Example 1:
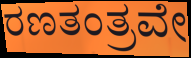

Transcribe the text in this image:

ರಣತಂತ್ರವೇ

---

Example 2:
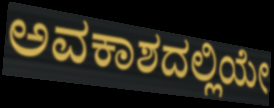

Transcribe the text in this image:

ಅವಕಾಶದಲ್ಲಿಯೇ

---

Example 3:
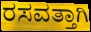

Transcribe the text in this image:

ರಸವತ್ತಾಗಿ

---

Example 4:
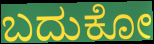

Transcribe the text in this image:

ಬದುಕೋ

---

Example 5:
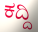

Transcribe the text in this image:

ಕದ್ದಿ